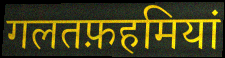
गलतफ़हमियां